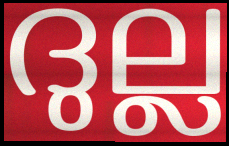
ദുല്ല